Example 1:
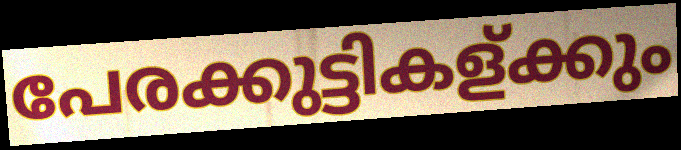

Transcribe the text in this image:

പേരക്കുട്ടികള്ക്കും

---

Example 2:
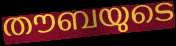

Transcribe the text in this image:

തൗബയുടെ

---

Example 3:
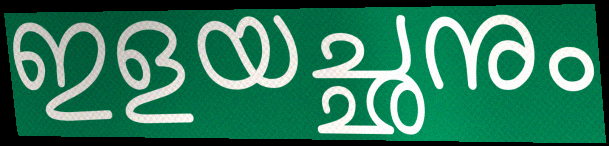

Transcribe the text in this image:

ഇളയച്ഛനും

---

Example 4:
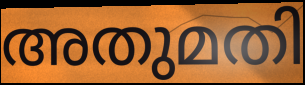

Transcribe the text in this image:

അതുമതി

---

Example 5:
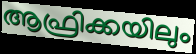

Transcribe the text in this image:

ആഫ്രിക്കയിലും